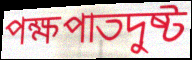
পক্ষপাতদুষ্ট